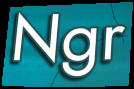
Ngr